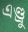
এণ্ড্ৰু